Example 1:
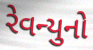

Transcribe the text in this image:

રેવન્યુનો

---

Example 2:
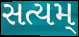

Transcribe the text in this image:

સત્યમ્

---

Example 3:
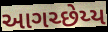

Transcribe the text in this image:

આગચ્છેય્ય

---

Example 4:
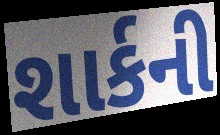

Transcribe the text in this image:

શાર્કની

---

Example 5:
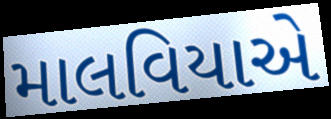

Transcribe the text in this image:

માલવિયાએ